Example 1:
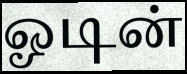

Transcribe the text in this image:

ஓடின்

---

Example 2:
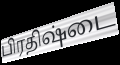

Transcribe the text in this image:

பிரதிஷ்டை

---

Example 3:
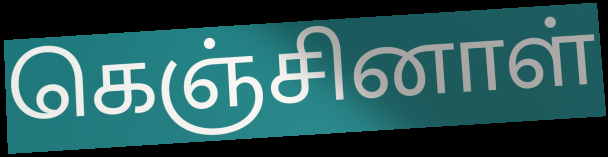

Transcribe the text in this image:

கெஞ்சினாள்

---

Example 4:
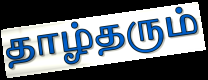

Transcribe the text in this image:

தாழ்தரும்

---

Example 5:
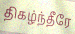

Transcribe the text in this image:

திகழ்ந்தீரே